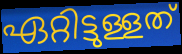
ഏറ്റിട്ടുള്ളത്